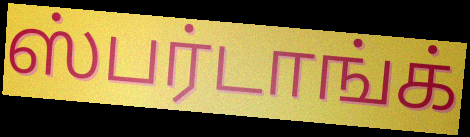
ஸ்பர்டாங்க்